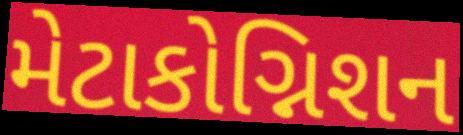
મેટાકોગ્નિશન